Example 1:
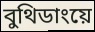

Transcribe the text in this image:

বুথিডাংয়ে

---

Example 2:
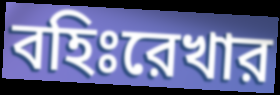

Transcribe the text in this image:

বহিঃরেখার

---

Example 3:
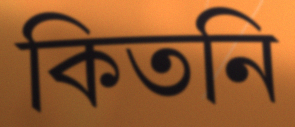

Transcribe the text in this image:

কিতনি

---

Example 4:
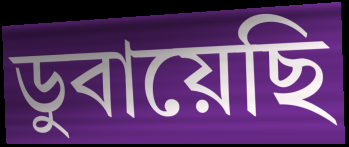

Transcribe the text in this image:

ডুবায়েছি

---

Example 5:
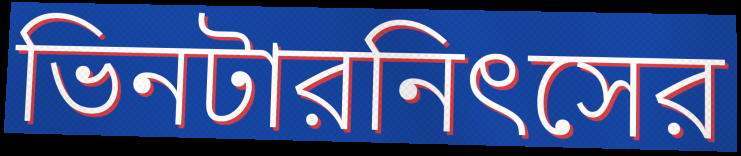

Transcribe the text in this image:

ভিনটারনিৎসের